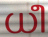
ധീ